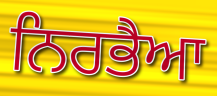
ਨਿਰਭੈਆ